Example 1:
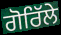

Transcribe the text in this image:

ਗੋਰਿੱਲੇ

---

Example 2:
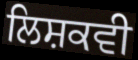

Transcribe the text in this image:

ਲਿਸ਼ਕਵੀ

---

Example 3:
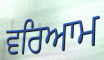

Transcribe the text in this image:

ਵਰਿਆਮ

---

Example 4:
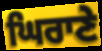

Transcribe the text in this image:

ਘਿਰਾਣੇ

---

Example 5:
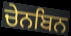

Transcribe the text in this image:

ਚੇਨਬਿਨ